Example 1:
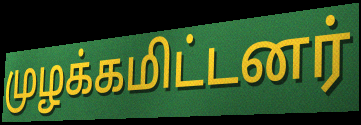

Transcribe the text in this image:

முழக்கமிட்டனர்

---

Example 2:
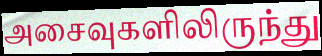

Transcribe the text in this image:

அசைவுகளிலிருந்து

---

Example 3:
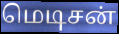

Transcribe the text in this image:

மெடிசன்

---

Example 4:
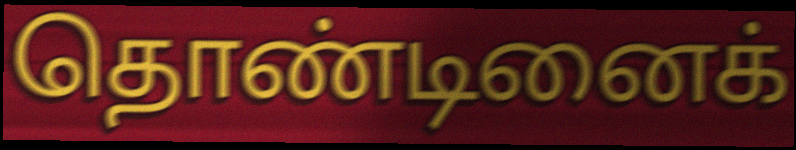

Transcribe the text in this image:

தொண்டினைக்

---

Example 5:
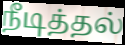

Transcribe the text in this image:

நீடித்தல்